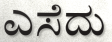
ಎಸೆದು